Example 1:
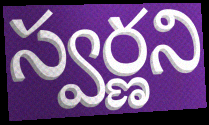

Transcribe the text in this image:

స్వర్ణని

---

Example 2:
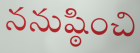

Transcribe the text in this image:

ననుష్ఠించి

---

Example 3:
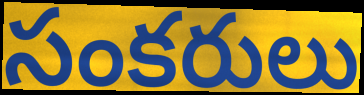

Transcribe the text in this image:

సంకరులు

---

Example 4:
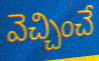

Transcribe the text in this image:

వెచ్చించే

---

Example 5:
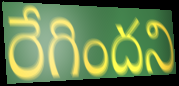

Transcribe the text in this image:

రేగిందని